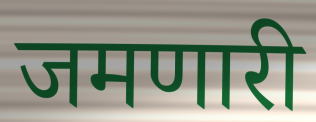
जमणारी